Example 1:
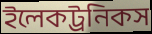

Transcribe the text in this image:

ইলেকট্রনিকস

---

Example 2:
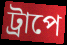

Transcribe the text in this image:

ট্রাপে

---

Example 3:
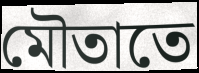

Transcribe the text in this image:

মৌতাতে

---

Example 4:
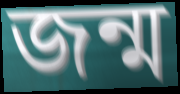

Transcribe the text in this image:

জন্ম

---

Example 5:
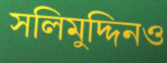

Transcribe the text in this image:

সলিমুদ্দিনও